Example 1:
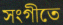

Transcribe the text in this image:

সংগীতে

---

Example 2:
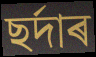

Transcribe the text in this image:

ছৰ্দাৰ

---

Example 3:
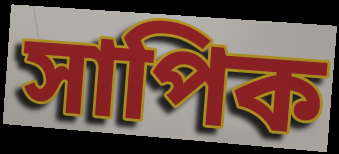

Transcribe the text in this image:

সাপিক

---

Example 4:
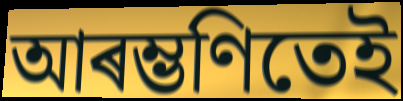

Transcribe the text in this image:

আৰম্ভণিতেই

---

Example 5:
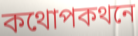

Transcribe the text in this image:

কথোপকথনে